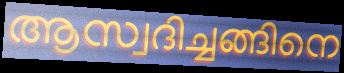
ആസ്വദിച്ചങ്ങിനെ